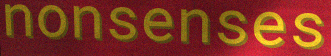
nonsenses